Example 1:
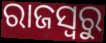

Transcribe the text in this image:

ରାଜସ୍ୱରୁ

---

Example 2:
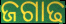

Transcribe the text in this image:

ଜଗାଢ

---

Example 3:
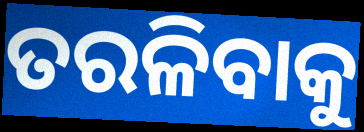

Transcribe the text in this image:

ତରଳିବାକୁ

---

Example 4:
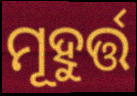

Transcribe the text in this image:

ମୂହୁର୍ତ୍ତ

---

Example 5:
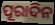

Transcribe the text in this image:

ପୂରାଦିନ